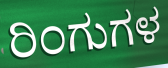
ರಿಂಗುಗಳ